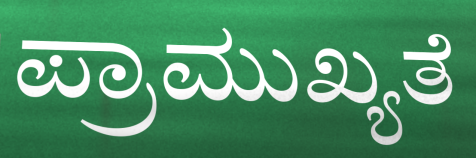
ಪ್ರಾಮುಖ್ಯತೆ